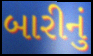
બારીનું